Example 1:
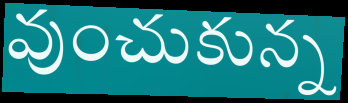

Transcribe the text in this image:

వుంచుకున్న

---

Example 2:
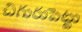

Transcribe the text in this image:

చిగురుపెట్టు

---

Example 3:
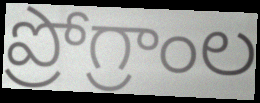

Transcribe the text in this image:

ప్రోగ్రాంల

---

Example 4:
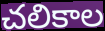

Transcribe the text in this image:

చలికాల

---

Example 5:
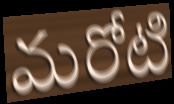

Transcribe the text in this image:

మరోటి